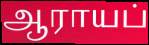
ஆராயப்